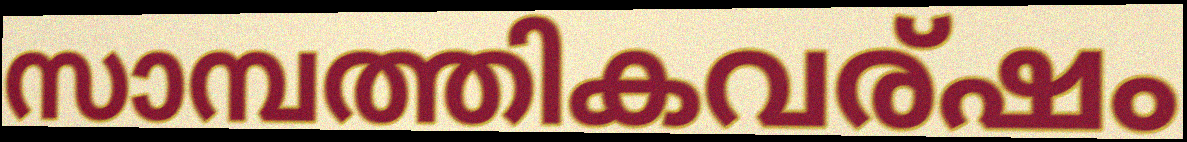
സാമ്പത്തികവര്ഷം